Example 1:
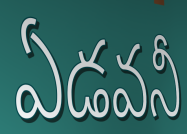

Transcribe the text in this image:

ఏడవనీ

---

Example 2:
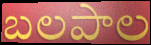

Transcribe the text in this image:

బలపాల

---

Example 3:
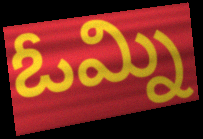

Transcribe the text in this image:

ఓమ్ని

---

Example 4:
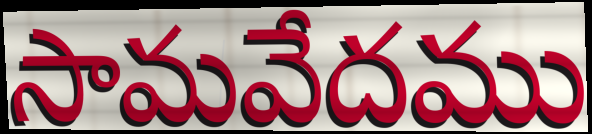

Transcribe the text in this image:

సామవేదము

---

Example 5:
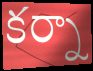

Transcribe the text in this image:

కర్నా